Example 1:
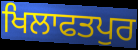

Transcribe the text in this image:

ਖਿਲਾਫਤਪੁਰ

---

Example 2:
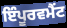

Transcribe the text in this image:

ਇੰਪੂਰਵਮੈਂਟ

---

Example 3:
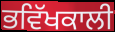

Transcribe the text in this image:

ਭਵਿੱਖਕਾਲੀ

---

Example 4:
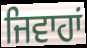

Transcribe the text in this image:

ਜਿਵਾਹਾਂ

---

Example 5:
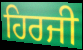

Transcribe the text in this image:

ਹਿਰਜੀ